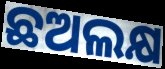
ଛଅଲକ୍ଷ